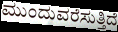
ಮುಂದುವರೆಸುತ್ತಿದೆ